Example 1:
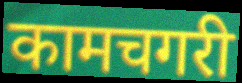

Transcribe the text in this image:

कामचगरी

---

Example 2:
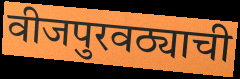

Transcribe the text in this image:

वीजपुरवठ्याची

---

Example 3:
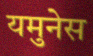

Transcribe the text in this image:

यमुनेस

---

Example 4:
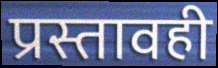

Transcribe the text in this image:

प्रस्तावही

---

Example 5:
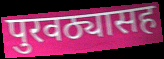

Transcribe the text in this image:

पुरवठ्यासह